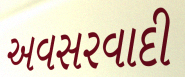
અવસરવાદી